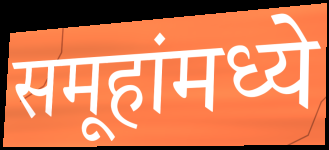
समूहांमध्ये